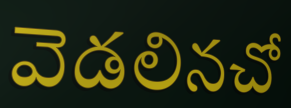
వెడలినచో